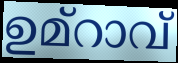
ഉമ്റാവ്